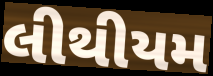
લીથીયમ